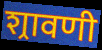
श्रावणी